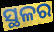
ସ୍ଥଳର